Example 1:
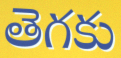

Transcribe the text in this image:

తెగకు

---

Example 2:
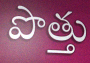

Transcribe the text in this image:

పొత్తు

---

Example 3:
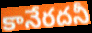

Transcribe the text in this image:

కానేరదనీ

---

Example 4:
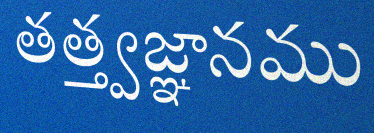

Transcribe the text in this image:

తత్త్వజ్ఞానము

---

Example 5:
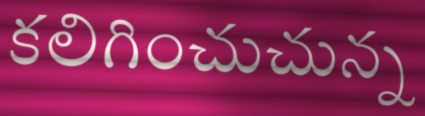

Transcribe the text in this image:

కలిగించుచున్న